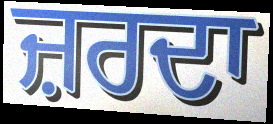
ਜ਼ਰਦਾ